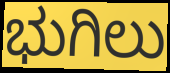
ಭುಗಿಲು